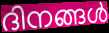
ദിനങ്ങൾ